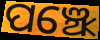
ପଞ୍ଝେ